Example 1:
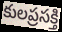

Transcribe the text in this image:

కులప్రసక్తి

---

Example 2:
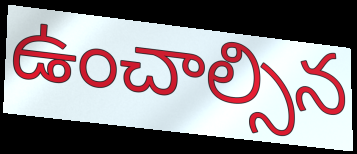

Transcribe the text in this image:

ఉంచాల్సిన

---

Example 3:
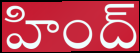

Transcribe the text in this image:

హింద్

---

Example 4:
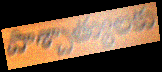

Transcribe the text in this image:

పాశ్చాత్యులకు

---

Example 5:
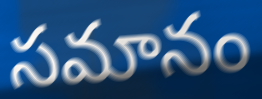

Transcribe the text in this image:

సమానం